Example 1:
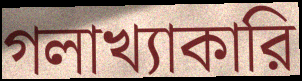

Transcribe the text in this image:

গলাখ্যাকারি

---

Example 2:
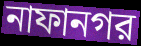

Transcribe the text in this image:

নাফানগর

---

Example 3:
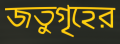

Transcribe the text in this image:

জতুগৃহের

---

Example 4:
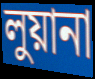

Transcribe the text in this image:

লুয়ানা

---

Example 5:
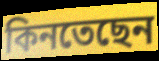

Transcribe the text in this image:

কিনতেছেন